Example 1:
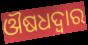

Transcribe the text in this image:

ଔଷଧଦ୍ୱାର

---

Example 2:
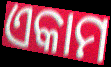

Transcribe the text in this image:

ଏକାମ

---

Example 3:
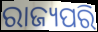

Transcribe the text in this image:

ରାଜ୍ୟପରି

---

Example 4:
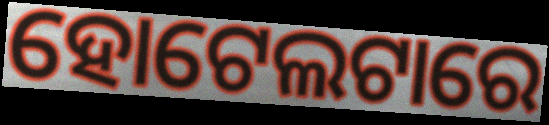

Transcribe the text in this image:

ହୋଟେଲଟାରେ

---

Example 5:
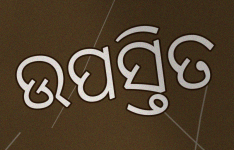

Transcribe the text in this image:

ଉପସ୍ତିତ